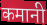
कमानी